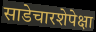
साडेचारशेपेक्षा